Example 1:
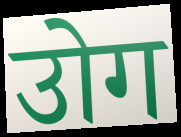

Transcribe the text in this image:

उोग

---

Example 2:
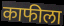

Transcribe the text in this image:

काफीला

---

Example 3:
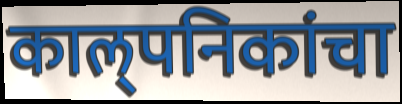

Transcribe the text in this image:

काल्पनिकांचा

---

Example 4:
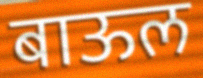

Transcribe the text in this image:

बाऊल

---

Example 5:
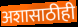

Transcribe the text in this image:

अशासाठीही